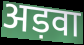
अड़वा